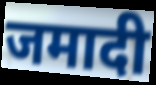
जमादी